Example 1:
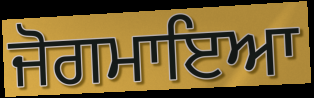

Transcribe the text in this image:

ਜੋਗਮਾਇਆ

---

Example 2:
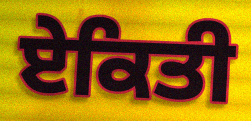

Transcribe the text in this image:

ਏਕਿਤੀ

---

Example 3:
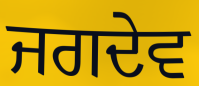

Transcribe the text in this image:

ਜਗਦੇਵ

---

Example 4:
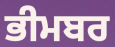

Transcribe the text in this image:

ਭੀਮਬਰ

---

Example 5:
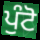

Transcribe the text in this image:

ਪੁੰਟੋ